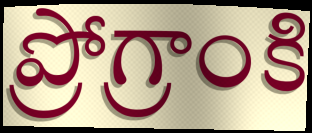
ప్రోగ్రాంకి